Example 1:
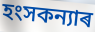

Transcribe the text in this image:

হংসকন্যাৰ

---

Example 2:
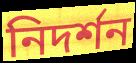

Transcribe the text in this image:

নিদৰ্শন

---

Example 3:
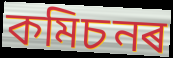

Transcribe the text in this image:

কমিচনৰ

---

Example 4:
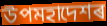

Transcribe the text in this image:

উপমহাদেশৰ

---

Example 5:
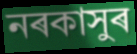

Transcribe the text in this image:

নৰকাসুৰ